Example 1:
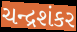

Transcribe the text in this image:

ચન્દ્રશંકર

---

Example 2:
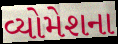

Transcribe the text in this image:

વ્યોમેશના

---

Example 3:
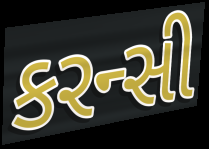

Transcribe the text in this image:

કરન્સી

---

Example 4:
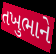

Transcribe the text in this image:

તખુભાને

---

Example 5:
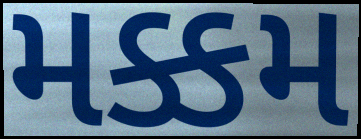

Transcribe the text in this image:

મક્કમ